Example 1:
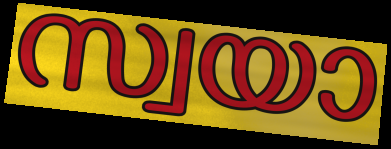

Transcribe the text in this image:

സ്വയാ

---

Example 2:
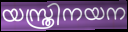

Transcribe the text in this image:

യസ്ത്രിനയന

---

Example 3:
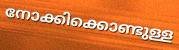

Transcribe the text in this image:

നോക്കിക്കൊണ്ടുള്ള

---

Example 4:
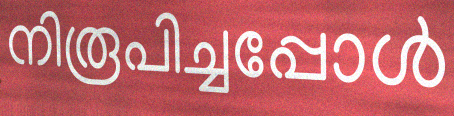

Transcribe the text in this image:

നിരൂപിച്ചപ്പോൾ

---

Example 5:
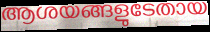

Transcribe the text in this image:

ആശയങ്ങളുടേതായ